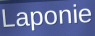
Laponie